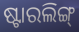
ଷ୍ଟାରଲିଙ୍ଗ୍